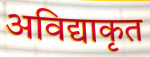
अविद्याकृत